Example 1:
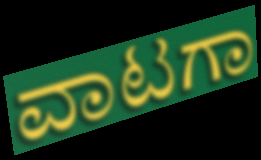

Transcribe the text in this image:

ವಾಟಗಾ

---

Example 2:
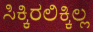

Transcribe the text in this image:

ಸಿಕ್ಕಿರಲಿಕ್ಕಿಲ್ಲ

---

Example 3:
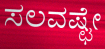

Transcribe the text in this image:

ಸಲವಷ್ಟೇ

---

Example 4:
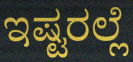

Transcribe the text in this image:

ಇಷ್ಟರಲ್ಲೆ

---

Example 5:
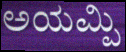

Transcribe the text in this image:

ಅಯಮ್ಪಿ